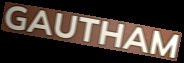
GAUTHAM